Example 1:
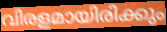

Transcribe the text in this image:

വിരളമായിരിക്കും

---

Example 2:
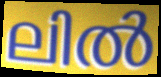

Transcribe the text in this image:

ലിൽ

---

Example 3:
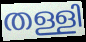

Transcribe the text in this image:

തള്ളി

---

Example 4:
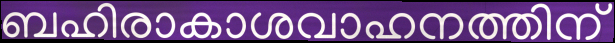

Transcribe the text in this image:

ബഹിരാകാശവാഹനത്തിന്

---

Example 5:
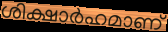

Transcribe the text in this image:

ശിക്ഷാർഹമാണ്